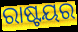
ରାଷ୍ଟୟର